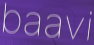
baavi